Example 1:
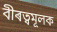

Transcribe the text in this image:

বীৰত্বমূলক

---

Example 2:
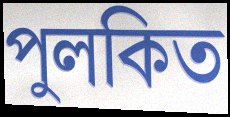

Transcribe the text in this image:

পুলকিত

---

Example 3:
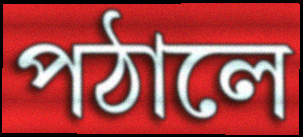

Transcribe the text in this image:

পঠালে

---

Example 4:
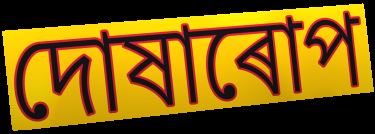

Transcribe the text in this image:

দোষাৰোপ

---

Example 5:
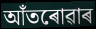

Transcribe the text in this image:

আঁতৰোৱাৰ